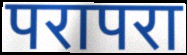
परापरा